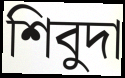
শিবুদা